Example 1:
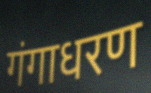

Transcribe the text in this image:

गंगाधरण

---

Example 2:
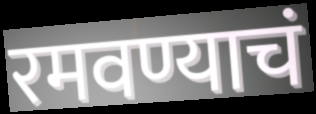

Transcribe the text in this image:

रमवण्याचं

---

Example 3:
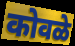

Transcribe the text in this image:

कोवळे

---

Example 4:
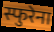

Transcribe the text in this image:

स्फुरेना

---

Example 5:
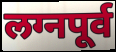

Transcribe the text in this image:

लग्नपूर्व